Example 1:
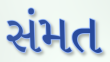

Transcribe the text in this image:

સંમત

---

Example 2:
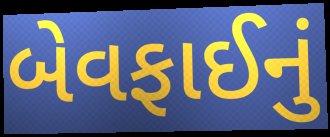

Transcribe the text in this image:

બેવફાઈનું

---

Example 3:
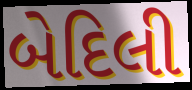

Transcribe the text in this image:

બેદિલી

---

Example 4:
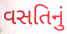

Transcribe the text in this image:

વસતિનું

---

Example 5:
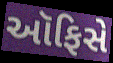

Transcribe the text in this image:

ઑફિસે